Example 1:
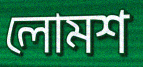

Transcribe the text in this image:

লোমশ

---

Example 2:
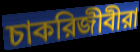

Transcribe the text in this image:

চাকরিজীবীরা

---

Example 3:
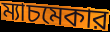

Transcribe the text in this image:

ম্যাচমেকার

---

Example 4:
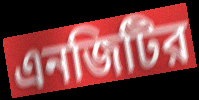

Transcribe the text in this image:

এনজিটির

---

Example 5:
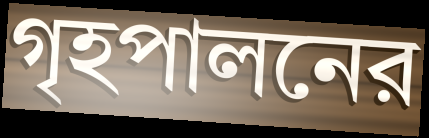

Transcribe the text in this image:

গৃহপালনের